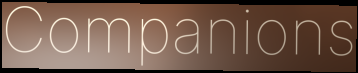
Companions